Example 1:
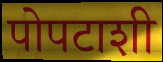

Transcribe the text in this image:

पोपटाशी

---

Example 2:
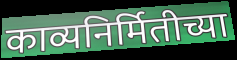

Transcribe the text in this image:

काव्यनिर्मितीच्या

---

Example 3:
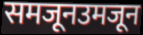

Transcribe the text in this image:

समजूनउमजून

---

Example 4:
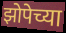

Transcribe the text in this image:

झोपेच्या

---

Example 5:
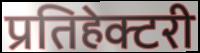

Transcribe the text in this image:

प्रतिहेक्टरी